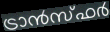
ട്രാൻസ്ഫർ